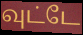
வுட்டே